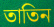
তাতিন